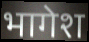
भागेश